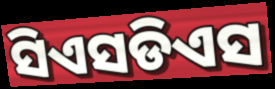
ସିଏସଡିଏସ